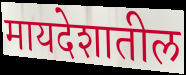
मायदेशातील